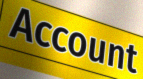
Account